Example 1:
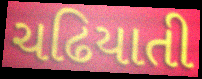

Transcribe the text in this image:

ચઢિયાતી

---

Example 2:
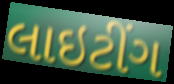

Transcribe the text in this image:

લાઇટીંગ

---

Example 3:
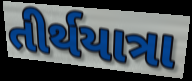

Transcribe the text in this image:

તીર્થયાત્રા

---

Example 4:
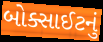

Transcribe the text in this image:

બોક્સાઈટનું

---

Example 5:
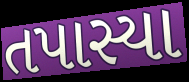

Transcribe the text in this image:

તપાસ્યા